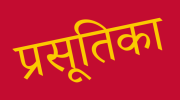
प्रसूतिका